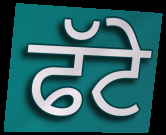
ਫੱਟੇ